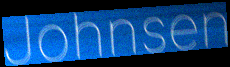
Johnsen